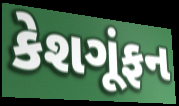
કેશગૂંફન